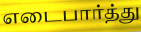
எடைபார்த்து